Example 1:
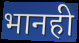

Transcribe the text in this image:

भानही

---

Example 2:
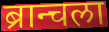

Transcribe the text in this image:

ब्रान्चला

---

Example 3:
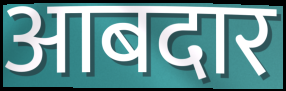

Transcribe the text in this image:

आबदार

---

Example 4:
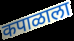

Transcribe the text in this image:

कपाळाला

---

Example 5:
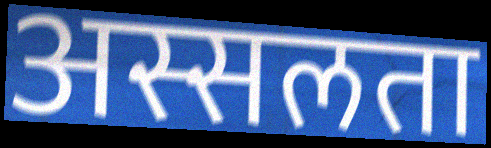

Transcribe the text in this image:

अस्सलता